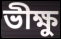
ভীক্ষু